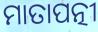
ମାତାପତ୍ନୀ